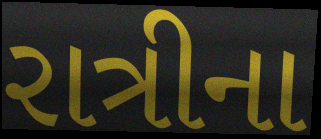
રાત્રીના